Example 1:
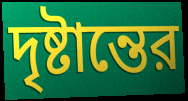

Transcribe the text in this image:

দৃষ্টান্তের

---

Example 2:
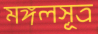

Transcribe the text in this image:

মঙ্গলসূত্র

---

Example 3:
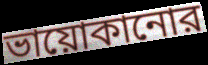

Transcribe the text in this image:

ভায়োকানোর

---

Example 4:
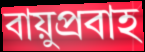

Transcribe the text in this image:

বায়ুপ্রবাহ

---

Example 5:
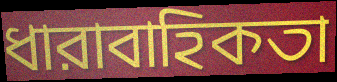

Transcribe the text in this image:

ধারাবাহিকতা